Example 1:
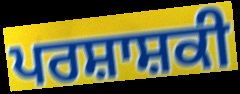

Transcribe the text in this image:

ਪਰਸ਼ਾਸ਼ਕੀ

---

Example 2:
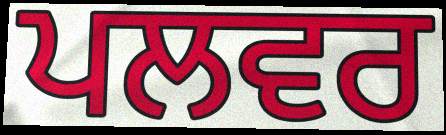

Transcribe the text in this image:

ਪਲਵਰ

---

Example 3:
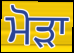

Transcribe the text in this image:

ਮੋੜਾ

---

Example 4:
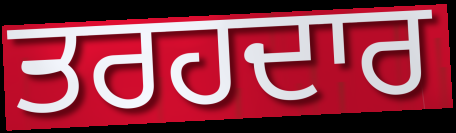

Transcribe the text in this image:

ਤਰਹਦਾਰ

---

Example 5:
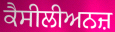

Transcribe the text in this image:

ਕੈਸੀਲੀਅਨਜ਼